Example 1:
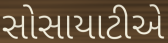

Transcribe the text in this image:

સોસાયાટીએ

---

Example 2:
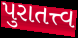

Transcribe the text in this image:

પુરાતત્ત્વ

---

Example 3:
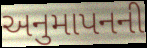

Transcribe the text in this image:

અનુમાપનની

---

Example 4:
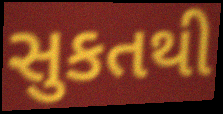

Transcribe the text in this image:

સુકતથી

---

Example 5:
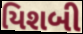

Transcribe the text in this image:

યિશબી